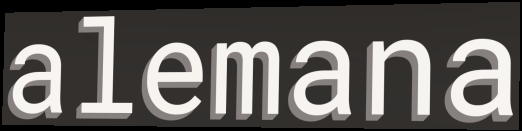
alemana